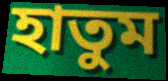
হাতুম